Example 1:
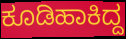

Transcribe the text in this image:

ಕೂಡಿಹಾಕಿದ್ದ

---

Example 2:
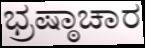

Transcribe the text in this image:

ಭ್ರಷ್ಠಾಚಾರ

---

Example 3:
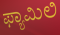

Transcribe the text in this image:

ಫ್ಯಾಮಿಲಿ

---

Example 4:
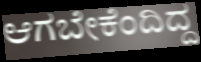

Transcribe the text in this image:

ಆಗಬೇಕೆಂದಿದ್ದ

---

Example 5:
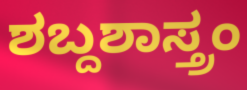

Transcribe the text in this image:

ಶಬ್ದಶಾಸ್ತ್ರಂ